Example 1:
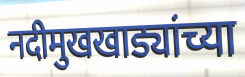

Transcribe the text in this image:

नदीमुखखाड्यांच्या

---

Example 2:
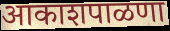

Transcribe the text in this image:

आकाशपाळणा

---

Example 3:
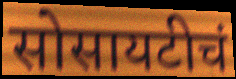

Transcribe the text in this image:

सोसायटीचं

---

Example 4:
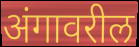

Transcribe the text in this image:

अंगावरील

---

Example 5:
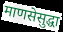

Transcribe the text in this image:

माणसेसुद्धा